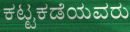
ಕಟ್ಟಕಡೆಯವರು